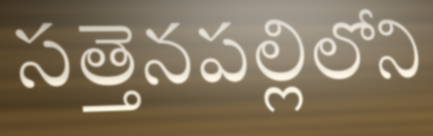
సత్తెనపల్లిలోని